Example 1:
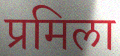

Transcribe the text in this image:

प्रमिला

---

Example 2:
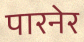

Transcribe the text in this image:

पारनेर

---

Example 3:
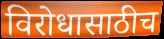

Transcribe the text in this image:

विरोधासाठीच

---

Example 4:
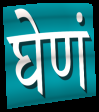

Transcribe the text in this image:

घेणं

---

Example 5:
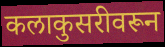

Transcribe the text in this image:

कलाकुसरीवरून